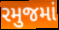
રમુજમાં